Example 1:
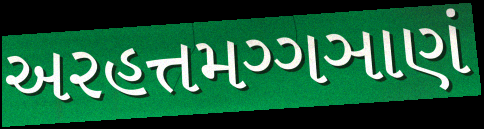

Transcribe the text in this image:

અરહત્તમગ્ગઞાણં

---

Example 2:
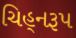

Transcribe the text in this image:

ચિહ્‌નરૂપ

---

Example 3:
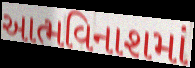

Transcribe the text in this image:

આત્મવિનાશમાં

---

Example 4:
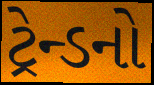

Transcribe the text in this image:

ટ્રેન્ડનો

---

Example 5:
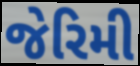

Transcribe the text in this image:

જેરિમી